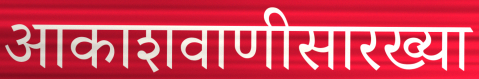
आकाशवाणीसारख्या